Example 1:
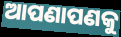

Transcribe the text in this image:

ଆପଣାପଣକୁ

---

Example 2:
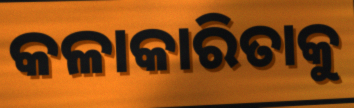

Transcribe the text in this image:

କଳାକାରିତାକୁ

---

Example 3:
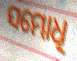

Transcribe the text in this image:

ସମ୍ଭୋଧି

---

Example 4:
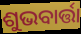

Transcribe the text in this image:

ଶୁଭବାର୍ତ୍ତା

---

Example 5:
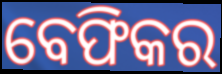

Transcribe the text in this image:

ବେଫିକର